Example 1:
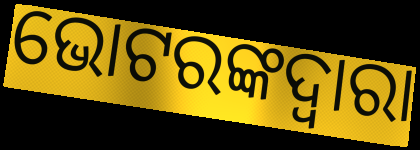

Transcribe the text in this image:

ଭୋଟରଙ୍କଦ୍ଵାରା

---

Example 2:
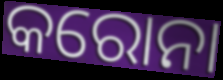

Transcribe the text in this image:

କରୋନା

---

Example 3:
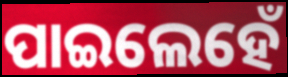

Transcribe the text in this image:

ପାଇଲେହେଁ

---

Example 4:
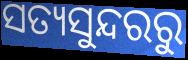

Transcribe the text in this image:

ସତ୍ୟସୁନ୍ଦରରୁ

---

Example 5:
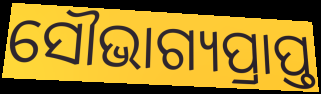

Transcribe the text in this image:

ସୌଭାଗ୍ୟପ୍ରାପ୍ତ